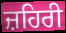
ਜ਼ਹਿਰੀ